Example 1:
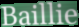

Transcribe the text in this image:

Baillie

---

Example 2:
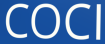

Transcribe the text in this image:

COCI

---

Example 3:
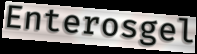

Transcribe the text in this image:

Enterosgel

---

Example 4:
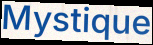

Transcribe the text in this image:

Mystique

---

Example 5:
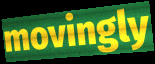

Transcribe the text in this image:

movingly